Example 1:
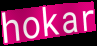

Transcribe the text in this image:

hokar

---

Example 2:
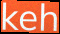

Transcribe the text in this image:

keh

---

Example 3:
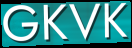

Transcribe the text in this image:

GKVK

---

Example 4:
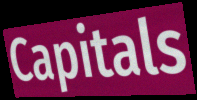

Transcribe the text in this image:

Capitals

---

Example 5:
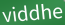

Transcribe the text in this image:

viddhe